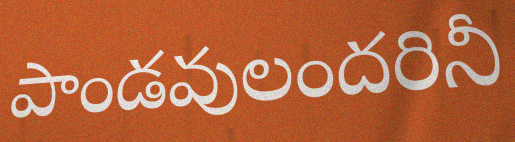
పాండవులందరినీ